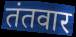
तंतवार